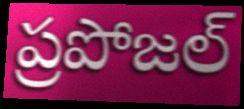
ప్రపోజల్